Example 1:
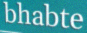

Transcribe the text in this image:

bhabte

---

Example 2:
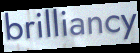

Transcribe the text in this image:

brilliancy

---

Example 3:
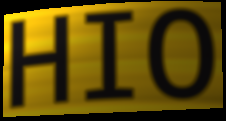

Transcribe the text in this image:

HIO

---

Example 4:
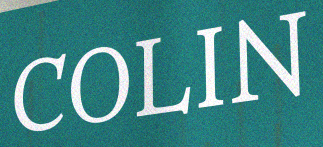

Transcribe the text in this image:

COLIN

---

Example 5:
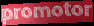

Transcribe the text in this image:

promotor